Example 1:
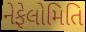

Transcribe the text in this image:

નેફેલોમિતિ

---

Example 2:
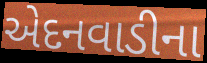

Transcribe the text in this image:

એદનવાડીના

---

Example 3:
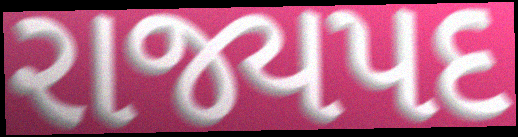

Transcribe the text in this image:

રાજ્યપદ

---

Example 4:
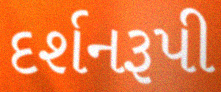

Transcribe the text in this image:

દર્શનરૂપી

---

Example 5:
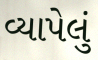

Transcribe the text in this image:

વ્યાપેલું